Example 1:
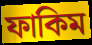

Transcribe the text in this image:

ফাকিম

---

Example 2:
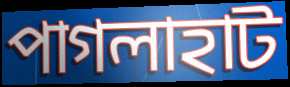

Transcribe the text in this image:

পাগলাহাট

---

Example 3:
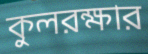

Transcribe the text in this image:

কুলরক্ষার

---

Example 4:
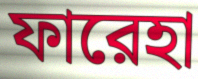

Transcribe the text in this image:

ফারেহা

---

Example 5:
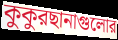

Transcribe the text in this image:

কুকুরছানাগুলোর